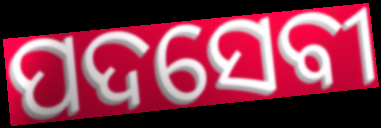
ପଦସେବୀ